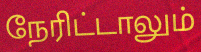
நேரிட்டாலும்